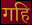
गहि